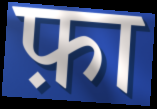
फ़ा